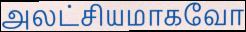
அலட்சியமாகவோ